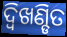
ଦ୍ଵିଖଣ୍ଡିତ